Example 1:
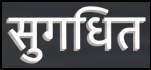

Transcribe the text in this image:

सुगधित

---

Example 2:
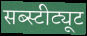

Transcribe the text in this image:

सब्स्टीट्यूट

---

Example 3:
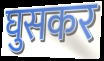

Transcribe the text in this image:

घुसकर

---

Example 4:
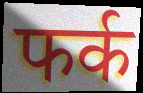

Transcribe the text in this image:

फर्क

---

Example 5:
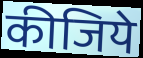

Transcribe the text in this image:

कीजिये